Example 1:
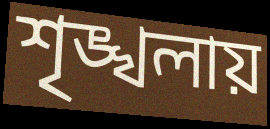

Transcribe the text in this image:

শৃঙ্খলায়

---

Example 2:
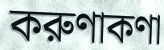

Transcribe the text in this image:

করুণাকণা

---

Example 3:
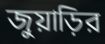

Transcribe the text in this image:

জুয়াড়ির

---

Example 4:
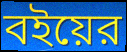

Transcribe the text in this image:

বইয়ের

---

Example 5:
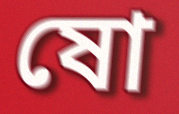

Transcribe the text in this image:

ষো